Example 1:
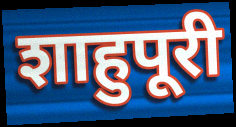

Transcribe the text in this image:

शाहुपूरी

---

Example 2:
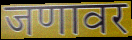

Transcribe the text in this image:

जणावर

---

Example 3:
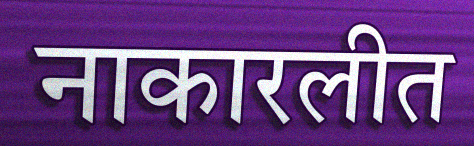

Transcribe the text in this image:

नाकारलीत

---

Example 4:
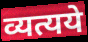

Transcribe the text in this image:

व्यत्यये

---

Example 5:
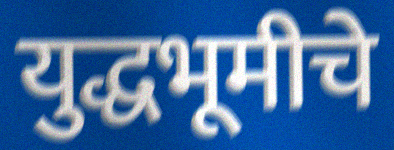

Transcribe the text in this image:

युद्धभूमीचे